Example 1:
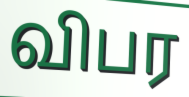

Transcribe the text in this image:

விபர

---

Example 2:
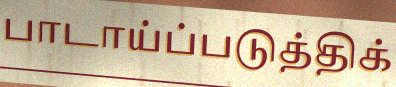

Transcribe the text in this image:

பாடாய்ப்படுத்திக்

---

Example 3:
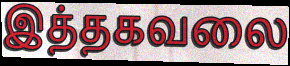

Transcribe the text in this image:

இத்தகவலை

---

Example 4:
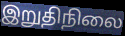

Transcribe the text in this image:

இறுதிநிலை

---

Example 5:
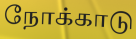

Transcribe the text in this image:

நோக்காடு